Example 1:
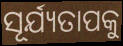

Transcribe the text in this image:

ସୂର୍ଯ୍ୟତାପକୁ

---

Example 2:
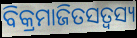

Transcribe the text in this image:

ବିକ୍ରମାଜିତସତ୍ଵସ୍ୟ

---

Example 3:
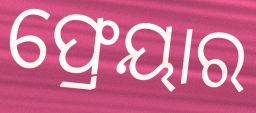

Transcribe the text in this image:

ଫ୍ରେୟାର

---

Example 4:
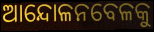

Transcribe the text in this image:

ଆନ୍ଦୋଳନବେଳକୁ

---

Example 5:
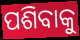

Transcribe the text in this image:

ପଶିବାକୁ